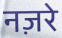
नज़रे